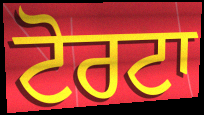
ਟੋਰਟਾ